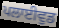
ਪਲਾਈਵੁਡ